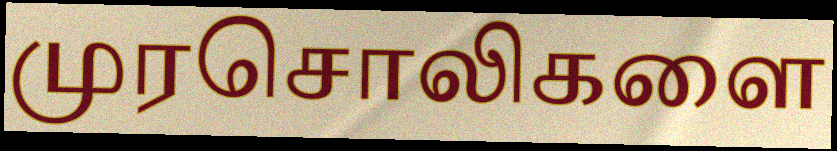
முரசொலிகளை